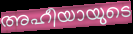
അഹീയായുടെ